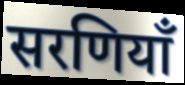
सरणियाँ